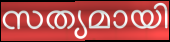
സത്യമായി